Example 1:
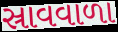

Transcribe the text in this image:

સ્રાવવાળા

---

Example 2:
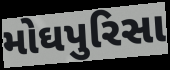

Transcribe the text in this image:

મોઘપુરિસા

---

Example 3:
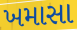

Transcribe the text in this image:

ખમાસા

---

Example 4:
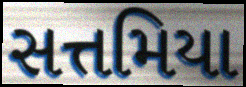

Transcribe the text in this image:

સત્તમિયા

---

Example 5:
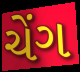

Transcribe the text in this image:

ચેંગ